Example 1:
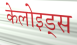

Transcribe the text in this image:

केलोइड्स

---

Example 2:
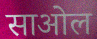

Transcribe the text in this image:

साओल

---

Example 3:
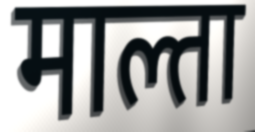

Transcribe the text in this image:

माल्ता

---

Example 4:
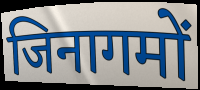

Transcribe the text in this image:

जिनागमों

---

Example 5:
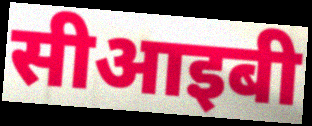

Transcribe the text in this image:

सीआइबी